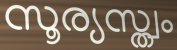
സൂര്യസ്ത്വം